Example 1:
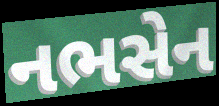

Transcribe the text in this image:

નભસેન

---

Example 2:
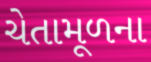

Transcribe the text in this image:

ચેતામૂળના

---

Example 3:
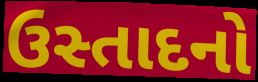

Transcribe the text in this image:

ઉસ્તાદનો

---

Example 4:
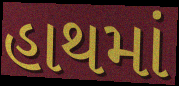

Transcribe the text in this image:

હાથમાં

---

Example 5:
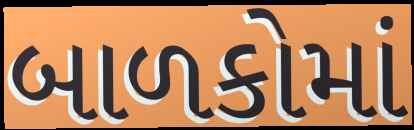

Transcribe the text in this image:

બાળકોમાં